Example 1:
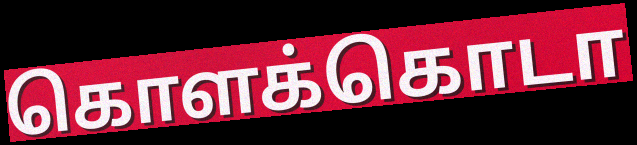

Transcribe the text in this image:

கொளக்கொடா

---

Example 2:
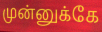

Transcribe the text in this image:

முன்னுக்கே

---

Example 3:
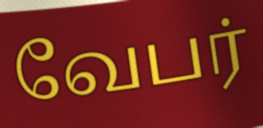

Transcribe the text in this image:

வேபர்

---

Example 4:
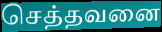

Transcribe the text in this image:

செத்தவனை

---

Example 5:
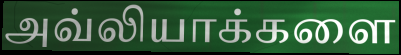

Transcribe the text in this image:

அவ்லியாக்களை